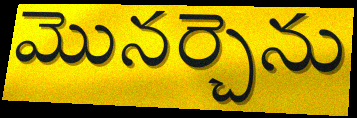
మొనర్చెను